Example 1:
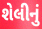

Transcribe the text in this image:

શેલીનું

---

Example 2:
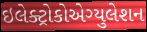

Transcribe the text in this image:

ઇલેક્ટ્રોકોએગ્યુલેશન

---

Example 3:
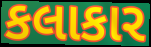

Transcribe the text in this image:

કલાકાર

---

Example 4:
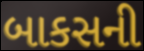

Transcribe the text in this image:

બાકસની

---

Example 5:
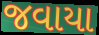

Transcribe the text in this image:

જવાયા